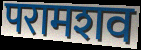
परामशव